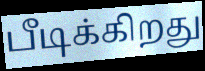
பீடிக்கிறது